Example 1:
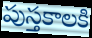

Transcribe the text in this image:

పుస్తకాలకి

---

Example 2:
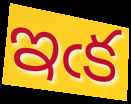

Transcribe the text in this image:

ఇఁక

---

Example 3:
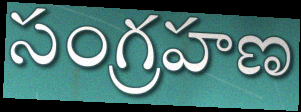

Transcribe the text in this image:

సంగ్రహణ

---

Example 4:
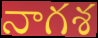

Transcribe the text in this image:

నాగశ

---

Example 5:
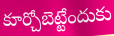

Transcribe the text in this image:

కూర్చోబెట్టేందుకు